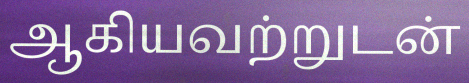
ஆகியவற்றுடன்